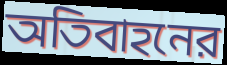
অতিবাহনের